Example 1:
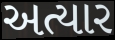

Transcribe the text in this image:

અત્યાર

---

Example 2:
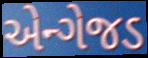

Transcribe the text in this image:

એન્ગેજડ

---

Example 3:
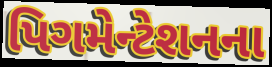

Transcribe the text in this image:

પિગમેન્ટેશનના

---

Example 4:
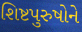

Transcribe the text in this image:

શિષ્ટપુરુષોને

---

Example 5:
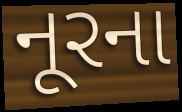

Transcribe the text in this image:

નૂરના